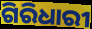
ଗିରିଧାରୀ